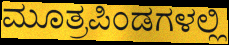
ಮೂತ್ರಪಿಂಡಗಳಲ್ಲಿ